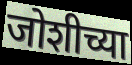
जोशीच्या